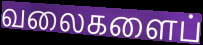
வலைகளைப்